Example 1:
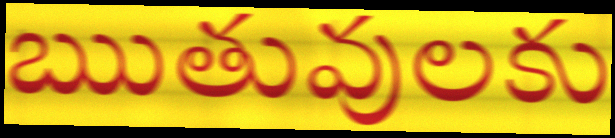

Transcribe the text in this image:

ఋతువులకు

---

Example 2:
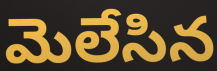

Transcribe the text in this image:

మెలేసిన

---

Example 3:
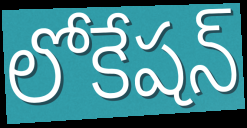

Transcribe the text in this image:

లోకేషన్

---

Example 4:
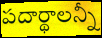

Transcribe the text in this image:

పదార్థాలన్నీ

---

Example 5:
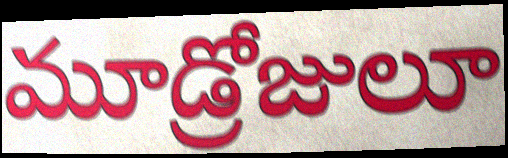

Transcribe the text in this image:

మూడ్రోజులూ